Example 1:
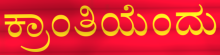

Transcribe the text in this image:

ಕ್ರಾಂತಿಯೆಂದು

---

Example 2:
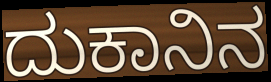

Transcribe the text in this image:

ದುಕಾನಿನ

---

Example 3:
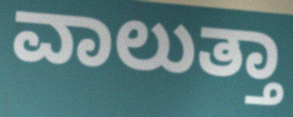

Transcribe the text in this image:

ವಾಲುತ್ತಾ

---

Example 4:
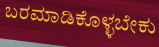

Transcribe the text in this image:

ಬರಮಾಡಿಕೊಳ್ಳಬೇಕು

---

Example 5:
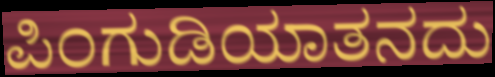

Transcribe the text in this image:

ಪಿಂಗುಡಿಯಾತನದು